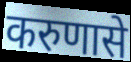
करुणासे